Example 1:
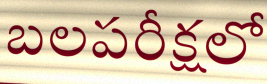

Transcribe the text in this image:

బలపరీక్షలో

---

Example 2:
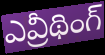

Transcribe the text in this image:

ఎవ్రీథింగ్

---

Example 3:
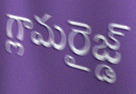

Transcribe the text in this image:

గ్లామరైజ్డ్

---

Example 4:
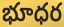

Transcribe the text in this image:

భూధర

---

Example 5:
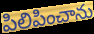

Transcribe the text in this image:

పిలిపించాను